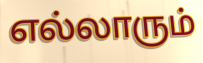
எல்லாரும்